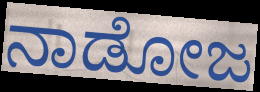
ನಾಡೋಜ